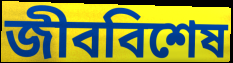
জীববিশেষ